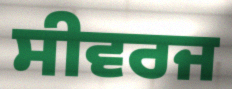
ਸੀਵਰਜ